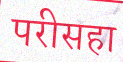
परीसहा